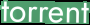
torrent